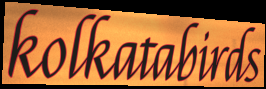
kolkatabirds